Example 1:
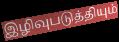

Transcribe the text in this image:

இழிவுபடுத்தியும்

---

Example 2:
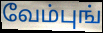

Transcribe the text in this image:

வேம்புங்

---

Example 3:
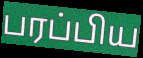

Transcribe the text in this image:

பரப்பிய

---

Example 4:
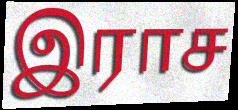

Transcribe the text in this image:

இராச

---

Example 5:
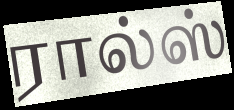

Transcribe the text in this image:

ரால்ஸ்